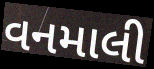
વનમાલી